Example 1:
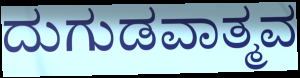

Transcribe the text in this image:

ದುಗುಡವಾತ್ಮವ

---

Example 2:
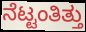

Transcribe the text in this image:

ನೆಟ್ಟಂತಿತ್ತು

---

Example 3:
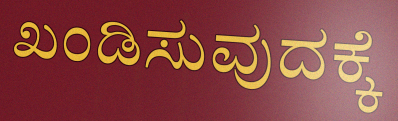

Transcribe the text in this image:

ಖಂಡಿಸುವುದಕ್ಕೆ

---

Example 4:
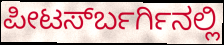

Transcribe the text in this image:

ಪೀಟರ್ಸ್‍ಬರ್ಗಿನಲ್ಲಿ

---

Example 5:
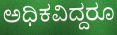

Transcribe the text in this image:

ಅಧಿಕವಿದ್ದರೂ